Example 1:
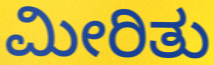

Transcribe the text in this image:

ಮೀರಿತು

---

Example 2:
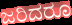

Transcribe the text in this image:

ಜರಿದರೂ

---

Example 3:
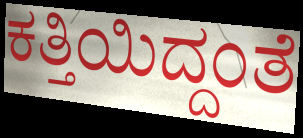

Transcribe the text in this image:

ಕತ್ತಿಯಿದ್ದಂತೆ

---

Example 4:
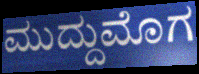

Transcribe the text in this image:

ಮುದ್ದುಮೊಗ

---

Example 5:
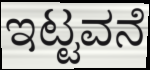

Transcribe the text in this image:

ಇಟ್ಟವನೆ